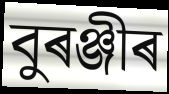
বুৰঞ্জীৰ